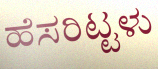
ಹೆಸರಿಟ್ಟಳು